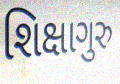
શિક્ષાગુરુ